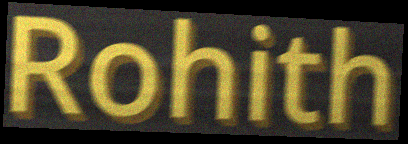
Rohith